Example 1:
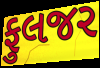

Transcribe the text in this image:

ફુલજર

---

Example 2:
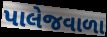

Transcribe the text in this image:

પાલેજવાળા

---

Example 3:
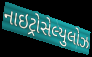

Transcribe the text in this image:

નાઇટ્રોસેલ્યુલોઝ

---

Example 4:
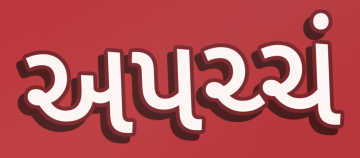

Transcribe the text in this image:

અપચ્ચં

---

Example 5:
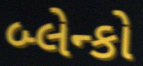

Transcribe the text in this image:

બ્લેન્કો